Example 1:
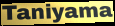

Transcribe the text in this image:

Taniyama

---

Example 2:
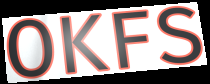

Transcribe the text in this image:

OKFS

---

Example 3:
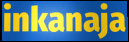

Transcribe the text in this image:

inkanaja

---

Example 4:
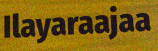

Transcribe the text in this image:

Ilayaraajaa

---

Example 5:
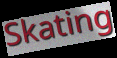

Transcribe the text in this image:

Skating